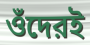
ওঁদেরই